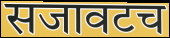
सजावटच